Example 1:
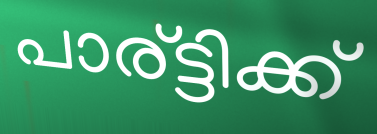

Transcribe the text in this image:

പാര്ട്ടിക്ക്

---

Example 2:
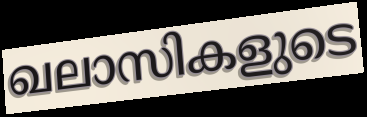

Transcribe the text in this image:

ഖലാസികളുടെ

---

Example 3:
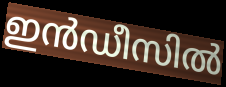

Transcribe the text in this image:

ഇൻഡീസിൽ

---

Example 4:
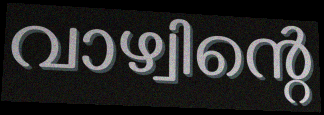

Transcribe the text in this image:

വാഴ്വിന്റെ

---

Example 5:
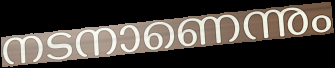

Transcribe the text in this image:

നടനാണെന്നും